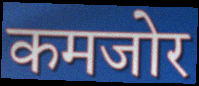
कमजोर